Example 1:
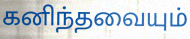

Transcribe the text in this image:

கனிந்தவையும்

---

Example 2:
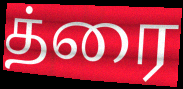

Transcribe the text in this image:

த்ரை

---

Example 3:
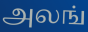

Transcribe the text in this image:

அலங்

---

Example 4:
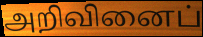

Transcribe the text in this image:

அறிவினைப்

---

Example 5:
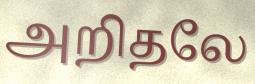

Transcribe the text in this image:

அறிதலே